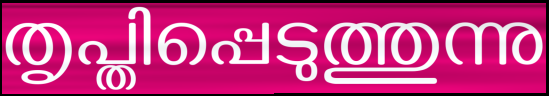
തൃപ്തിപ്പെടുത്തുന്നു